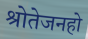
श्रोतेजनहो